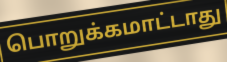
பொறுக்கமாட்டாது